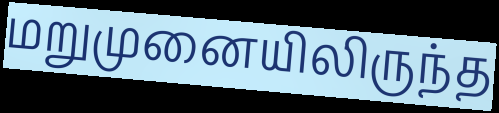
மறுமுனையிலிருந்த